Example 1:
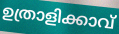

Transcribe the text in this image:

ഉത്രാളിക്കാവ്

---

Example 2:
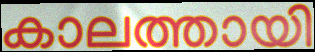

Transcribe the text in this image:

കാലത്തായി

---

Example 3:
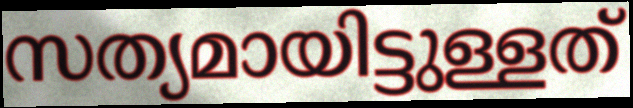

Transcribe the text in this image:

സത്യമായിട്ടുള്ളത്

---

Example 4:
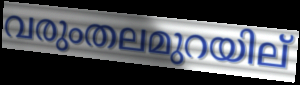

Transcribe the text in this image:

വരുംതലമുറയില്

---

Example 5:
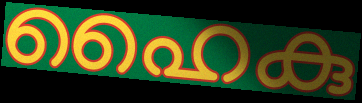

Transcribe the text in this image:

ഹൈകു